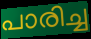
പാരിച്ച